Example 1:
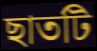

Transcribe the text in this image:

ছাতটি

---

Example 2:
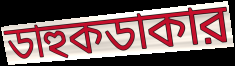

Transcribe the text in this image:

ডাহুকডাকার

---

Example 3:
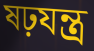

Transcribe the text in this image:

ষঢ়যন্ত্র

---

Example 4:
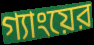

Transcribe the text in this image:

গ্যাংয়ের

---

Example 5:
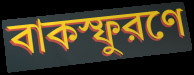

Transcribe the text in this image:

বাকস্ফুরণে